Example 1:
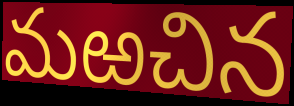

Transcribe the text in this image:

మఱచిన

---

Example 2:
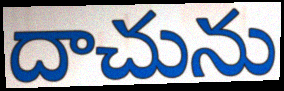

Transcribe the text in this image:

దాచును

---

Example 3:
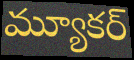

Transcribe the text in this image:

మ్యూకర్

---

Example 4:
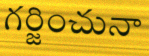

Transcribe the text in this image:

గర్జించునా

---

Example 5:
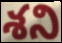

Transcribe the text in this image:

శని